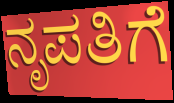
ನೃಪತಿಗೆ